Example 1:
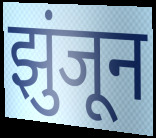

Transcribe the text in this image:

झुंजून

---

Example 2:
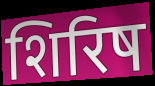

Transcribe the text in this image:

शिरिष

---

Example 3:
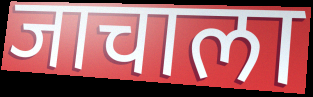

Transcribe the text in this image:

जाचाला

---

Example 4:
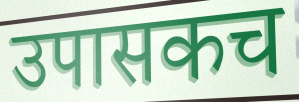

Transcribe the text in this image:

उपासकच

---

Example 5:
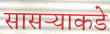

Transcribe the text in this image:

सासऱ्याकडे